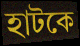
হাটকে